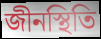
জীনস্থিতি